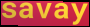
savay